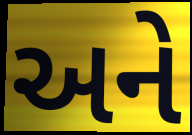
અને